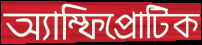
অ্যাম্ফিপ্রোটিক